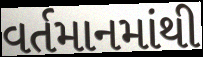
વર્તમાનમાંથી